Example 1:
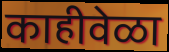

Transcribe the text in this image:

काहीवेळा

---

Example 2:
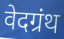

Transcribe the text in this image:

वेदग्रंथ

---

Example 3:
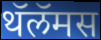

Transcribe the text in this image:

थॅलॅमस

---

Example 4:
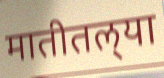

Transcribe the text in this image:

मातीतल्या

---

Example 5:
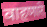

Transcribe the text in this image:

वाहणारे